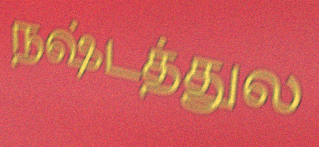
நஷ்டத்துல